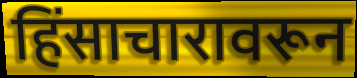
हिंसाचारावरून